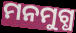
ମନମୁଗ୍ଧ